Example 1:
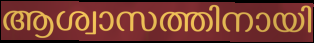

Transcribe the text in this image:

ആശ്വാസത്തിനായി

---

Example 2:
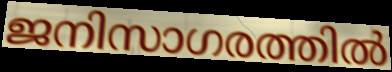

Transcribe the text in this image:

ജനിസാഗരത്തിൽ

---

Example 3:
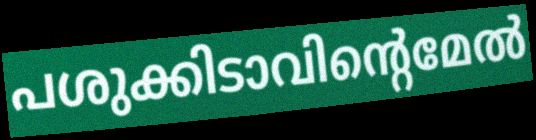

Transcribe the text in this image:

പശുക്കിടാവിന്റെമേൽ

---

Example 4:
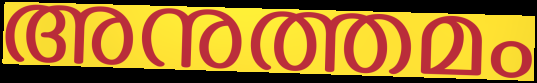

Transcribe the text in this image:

അനുത്തമം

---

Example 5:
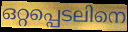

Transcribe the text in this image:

ഒറ്റപ്പെടലിനെ